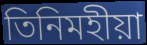
তিনিমহীয়া